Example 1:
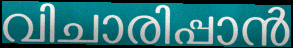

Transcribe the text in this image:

വിചാരിപ്പാൻ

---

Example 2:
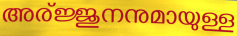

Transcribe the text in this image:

അര്ജ്ജുനനുമായുള്ള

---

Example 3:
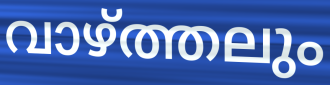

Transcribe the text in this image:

വാഴ്ത്തലും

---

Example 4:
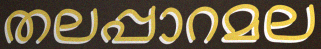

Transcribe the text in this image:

തലപ്പാറമല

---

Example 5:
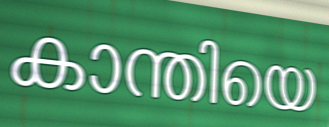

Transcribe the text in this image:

കാന്തിയെ